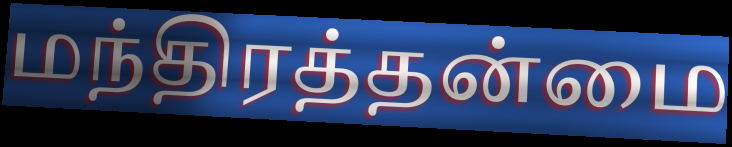
மந்திரத்தன்மை